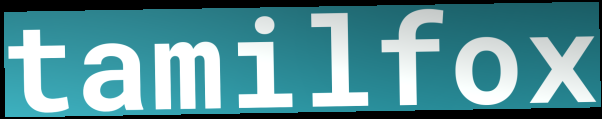
tamilfox